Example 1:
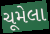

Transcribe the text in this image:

ચૂમેલા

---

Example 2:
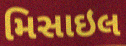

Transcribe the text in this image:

મિસાઇલ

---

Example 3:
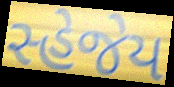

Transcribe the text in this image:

સ્હેજેય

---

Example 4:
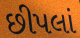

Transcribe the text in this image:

છીપલાં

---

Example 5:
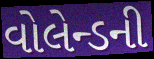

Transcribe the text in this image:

વોલેન્ડની